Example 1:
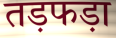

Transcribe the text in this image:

तड़फड़ा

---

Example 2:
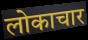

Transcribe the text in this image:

लोकाचार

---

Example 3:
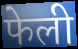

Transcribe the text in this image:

फेली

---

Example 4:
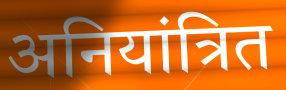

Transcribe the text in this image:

अनियांत्रित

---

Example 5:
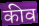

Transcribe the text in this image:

कीव